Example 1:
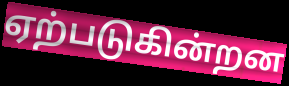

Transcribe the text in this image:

ஏற்படுகின்றன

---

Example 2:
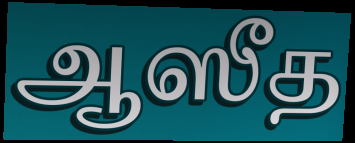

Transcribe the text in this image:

ஆஸீத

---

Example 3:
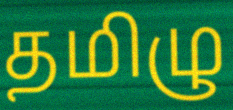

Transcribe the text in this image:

தமிழு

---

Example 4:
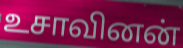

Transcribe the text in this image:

உசாவினன்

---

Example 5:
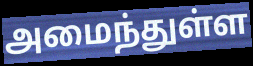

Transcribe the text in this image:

அமைந்துள்ள